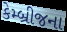
કેમ્બ્રીજના